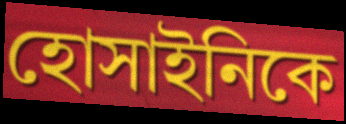
হোসাইনিকে